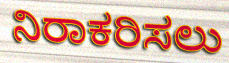
ನಿರಾಕರಿಸಲು